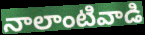
నాలాంటివాడి